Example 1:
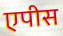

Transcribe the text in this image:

एपीस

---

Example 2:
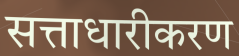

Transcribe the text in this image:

सत्ताधारीकरण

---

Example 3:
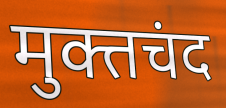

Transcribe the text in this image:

मुक्तचंद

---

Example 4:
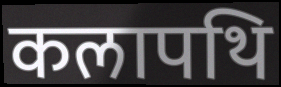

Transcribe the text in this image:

कलापथि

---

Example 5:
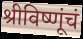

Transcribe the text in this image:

श्रीविष्णूंचं